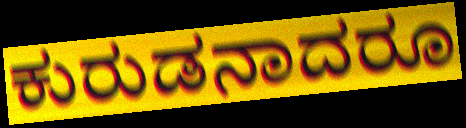
ಕುರುಡನಾದರೂ